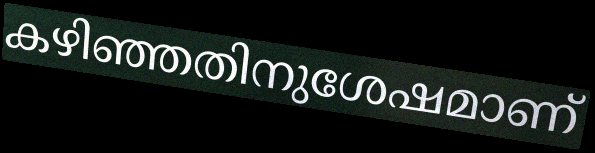
കഴിഞ്ഞതിനുശേഷമാണ്